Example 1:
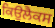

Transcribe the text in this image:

ਕਿਉਲੈਕਸ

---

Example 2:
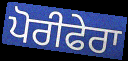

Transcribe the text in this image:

ਪੋਰੀਫੇਰਾ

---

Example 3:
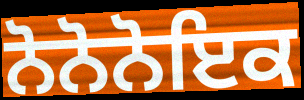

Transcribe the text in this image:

ਨੋਨੋਨੋਇਕ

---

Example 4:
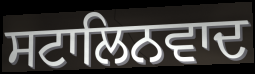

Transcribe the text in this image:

ਸਟਾਲਿਨਵਾਦ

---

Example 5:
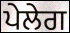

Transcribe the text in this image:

ਪੇਲੇਗ